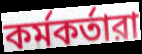
কর্মকর্তারা